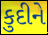
કુદીને